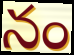
నం